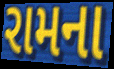
રામના